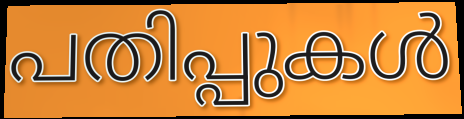
പതിപ്പുകൾ